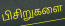
பிசிறுகளை